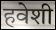
हवेशी